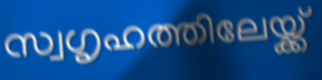
സ്വഗൃഹത്തിലേയ്ക്ക്